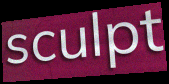
sculpt